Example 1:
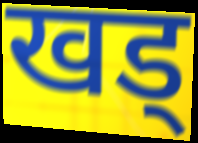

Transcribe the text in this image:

खड्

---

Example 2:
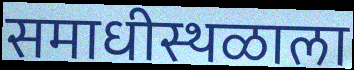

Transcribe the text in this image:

समाधीस्थळाला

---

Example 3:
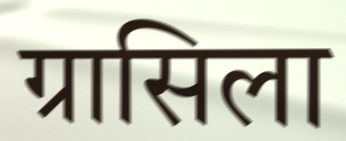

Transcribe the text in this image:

ग्रासिला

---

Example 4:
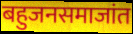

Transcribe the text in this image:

बहुजनसमाजांत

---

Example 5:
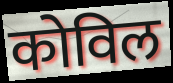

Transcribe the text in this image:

कोविल